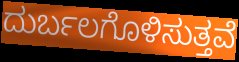
ದುರ್ಬಲಗೊಳಿಸುತ್ತವೆ